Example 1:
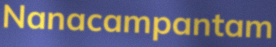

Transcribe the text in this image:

Nanacampantam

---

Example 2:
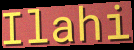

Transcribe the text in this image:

Ilahi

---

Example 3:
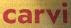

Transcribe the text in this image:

carvi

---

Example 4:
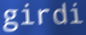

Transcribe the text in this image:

girdi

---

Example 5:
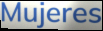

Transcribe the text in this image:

Mujeres